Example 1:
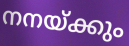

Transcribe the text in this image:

നനയ്ക്കും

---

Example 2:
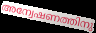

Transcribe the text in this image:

അന്വേഷണത്തിനു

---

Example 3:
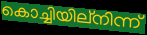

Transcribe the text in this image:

കൊച്ചിയില്നിന്ന്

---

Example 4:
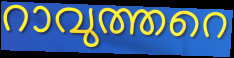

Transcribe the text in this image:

റാവുത്തറെ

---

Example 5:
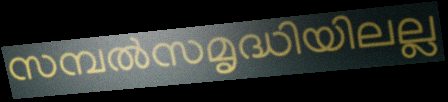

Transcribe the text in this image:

സമ്പൽസമൃദ്ധിയിലല്ല